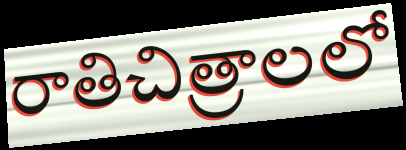
రాతిచిత్రాలలో